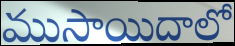
ముసాయిదాలో